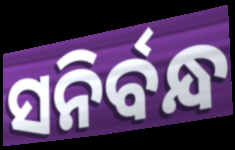
ସନିର୍ବନ୍ଧ